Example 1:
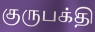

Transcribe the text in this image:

குருபக்தி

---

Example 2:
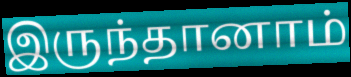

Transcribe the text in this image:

இருந்தானாம்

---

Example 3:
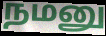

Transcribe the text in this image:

நமனு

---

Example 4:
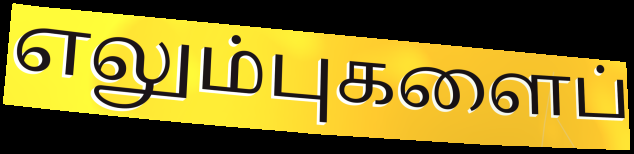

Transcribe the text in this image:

எலும்புகளைப்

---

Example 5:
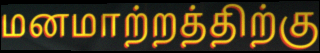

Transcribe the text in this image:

மனமாற்றத்திற்கு